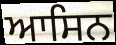
ਆਸਿਨ